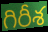
గిరీశ